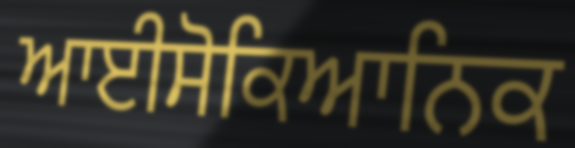
ਆਈਸੋਕਿਆਨਿਕ